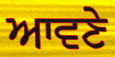
ਆਵਣੇ